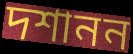
দশানন